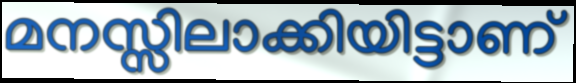
മനസ്സിലാക്കിയിട്ടാണ്